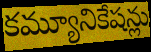
కమ్యూనికేషన్లు